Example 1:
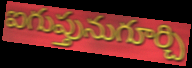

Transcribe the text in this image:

ఐగుప్తునుగూర్చి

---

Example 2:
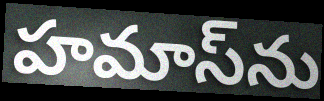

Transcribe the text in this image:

హమాస్‌ను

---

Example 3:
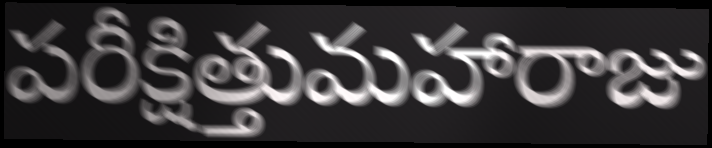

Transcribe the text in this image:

పరీక్షిత్తుమహారాజు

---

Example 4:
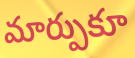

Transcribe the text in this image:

మార్పుకూ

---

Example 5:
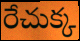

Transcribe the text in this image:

రేచుక్క